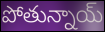
పోతున్నాయ్